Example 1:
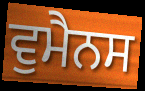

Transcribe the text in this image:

ਵੁਮੈਨਸ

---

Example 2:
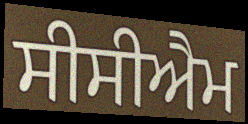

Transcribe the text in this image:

ਸੀਸੀਐਮ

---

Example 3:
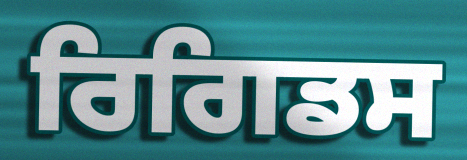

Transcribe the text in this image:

ਰਿਗਿਡਸ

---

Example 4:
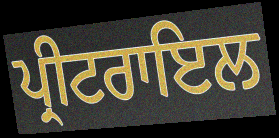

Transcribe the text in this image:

ਪ੍ਰੀਟਰਾਇਲ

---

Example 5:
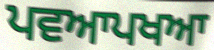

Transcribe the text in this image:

ਪਵਆਪਖਆ